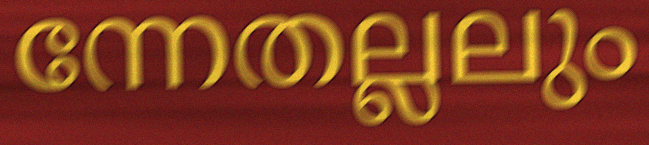
ന്നേതല്ലലും